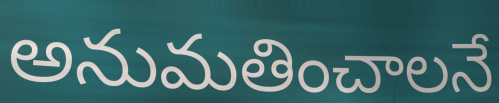
అనుమతించాలనే